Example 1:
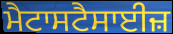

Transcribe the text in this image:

ਮੈਟਾਸਟੈਸਾਈਜ਼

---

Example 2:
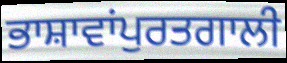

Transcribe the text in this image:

ਭਾਸ਼ਾਵਾਂਪੁਰਤਗਾਲੀ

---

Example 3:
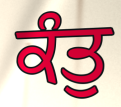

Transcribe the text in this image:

ਕੰਤੁ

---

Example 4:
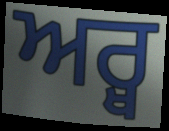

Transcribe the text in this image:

ਅਰ੍ਥ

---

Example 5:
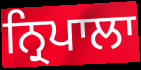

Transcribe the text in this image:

ਨ੍ਰਿਪਾਲਾ